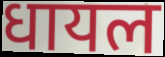
धायल